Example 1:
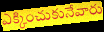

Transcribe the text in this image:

ఎక్కించుకునేవారు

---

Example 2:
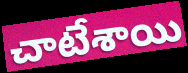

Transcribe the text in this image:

చాటేశాయి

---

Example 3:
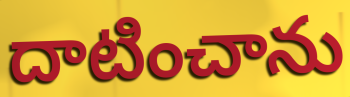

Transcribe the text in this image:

దాటించాను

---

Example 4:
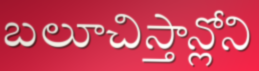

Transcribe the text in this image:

బలూచిస్తాన్లోని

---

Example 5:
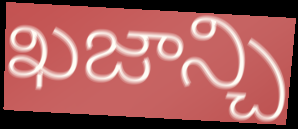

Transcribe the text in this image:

ఖజాన్చి